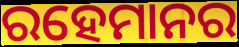
ରହେମାନର